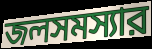
জলসমস্যার